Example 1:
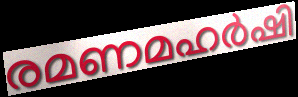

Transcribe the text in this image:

രമണമഹർഷി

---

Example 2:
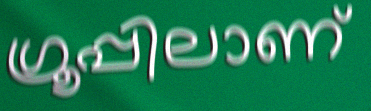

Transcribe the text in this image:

ഗ്രൂപ്പിലാണ്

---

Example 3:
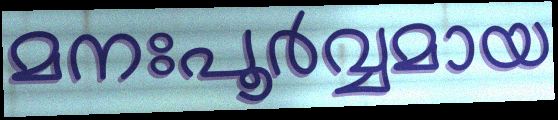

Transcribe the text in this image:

മനഃപൂർവ്വമായ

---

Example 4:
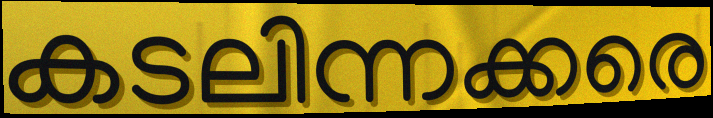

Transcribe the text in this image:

കടലിന്നക്കരെ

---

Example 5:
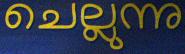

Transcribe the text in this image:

ചെല്ലുന്നു